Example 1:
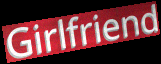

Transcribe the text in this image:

Girlfriend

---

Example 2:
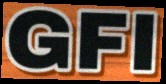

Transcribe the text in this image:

GFI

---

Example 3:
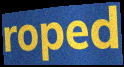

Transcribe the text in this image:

roped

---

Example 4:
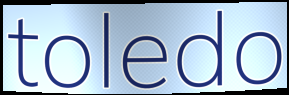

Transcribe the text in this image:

toledo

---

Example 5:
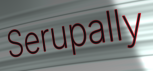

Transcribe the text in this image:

Serupally